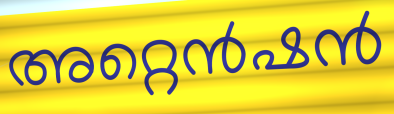
അറ്റെൻഷൻ